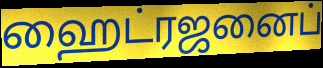
ஹைட்ரஜனைப்